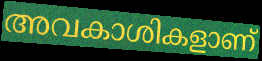
അവകാശികളാണ്